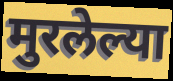
मुरलेल्या